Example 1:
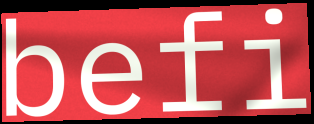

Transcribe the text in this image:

befi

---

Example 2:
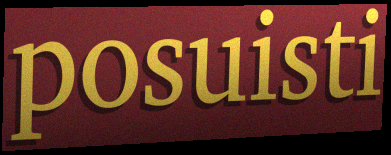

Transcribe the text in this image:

posuisti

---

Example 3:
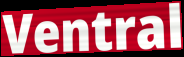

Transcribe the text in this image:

Ventral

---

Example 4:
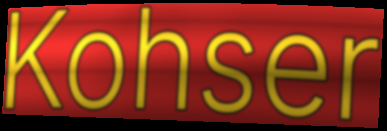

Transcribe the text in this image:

Kohser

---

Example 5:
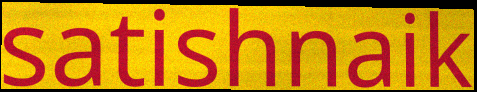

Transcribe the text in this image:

satishnaik